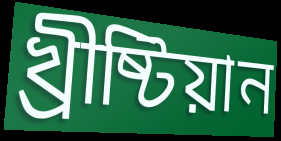
খ্ৰীষ্টিয়ান